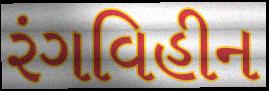
રંગવિહીન